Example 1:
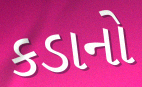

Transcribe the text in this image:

કડાનો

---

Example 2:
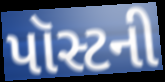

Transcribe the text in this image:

પૉસ્ટની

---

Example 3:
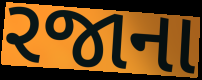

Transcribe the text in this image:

રજાના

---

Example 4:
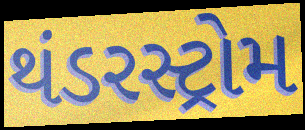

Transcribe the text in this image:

થંડરસ્ટ્રોમ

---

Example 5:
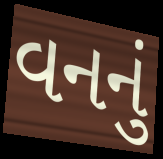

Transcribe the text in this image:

વનનું